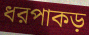
ধরপাকড়